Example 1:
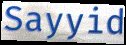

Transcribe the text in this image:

Sayyid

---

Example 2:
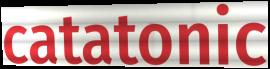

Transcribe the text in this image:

catatonic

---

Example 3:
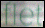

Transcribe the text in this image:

flet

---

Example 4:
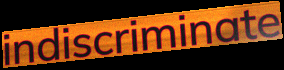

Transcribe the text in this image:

indiscriminate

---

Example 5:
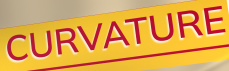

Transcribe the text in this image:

CURVATURE